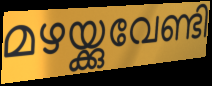
മഴയ്ക്കുവേണ്ടി